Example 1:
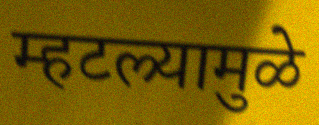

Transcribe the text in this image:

म्हटल्यामुळे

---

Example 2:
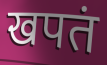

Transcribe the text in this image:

खपतं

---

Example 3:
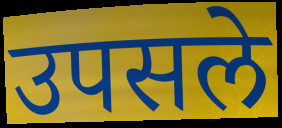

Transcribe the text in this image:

उपसले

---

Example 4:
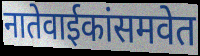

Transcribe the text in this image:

नातेवाईकांसमवेत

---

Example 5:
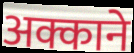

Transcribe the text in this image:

अक्काने